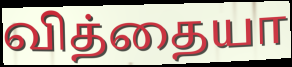
வித்தையா